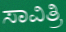
ಸಾವಿತ್ರಿ